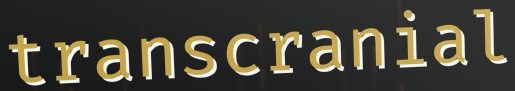
transcranial